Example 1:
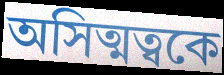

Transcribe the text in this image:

অসিত্মত্বকে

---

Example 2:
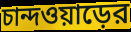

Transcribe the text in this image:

চান্দওয়াড়ের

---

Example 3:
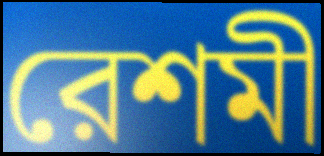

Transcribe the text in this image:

রেশমী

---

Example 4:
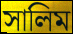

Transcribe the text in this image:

সালিম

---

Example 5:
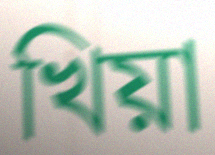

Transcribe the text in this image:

খিয়া